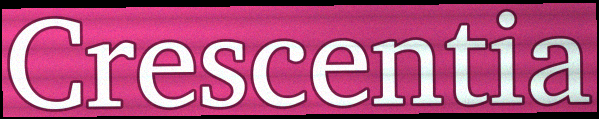
Crescentia